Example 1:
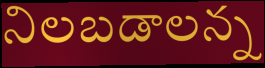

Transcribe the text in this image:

నిలబడాలన్న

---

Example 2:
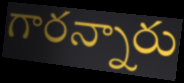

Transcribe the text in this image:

గారన్నారు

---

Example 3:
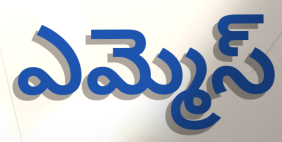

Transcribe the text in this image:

ఎమ్మెస్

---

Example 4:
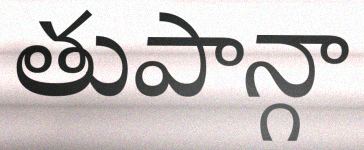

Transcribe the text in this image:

తుపాన్గా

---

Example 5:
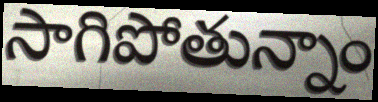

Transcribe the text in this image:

సాగిపోతున్నాం